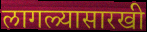
लागल्यासारखी